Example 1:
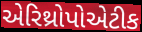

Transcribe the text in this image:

એરિથ્રોપોએટીક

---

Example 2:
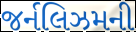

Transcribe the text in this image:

જર્નલિઝમની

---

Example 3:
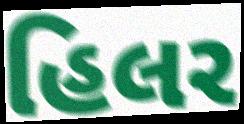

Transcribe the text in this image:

હિલર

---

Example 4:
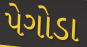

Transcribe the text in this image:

પેગોડા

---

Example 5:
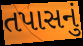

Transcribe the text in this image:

તપાસનું